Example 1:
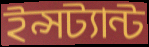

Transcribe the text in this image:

ইন্সট্যান্ট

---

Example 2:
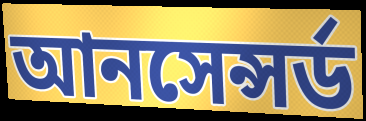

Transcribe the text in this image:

আনসেন্সর্ড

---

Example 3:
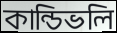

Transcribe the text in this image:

কান্ডিভলি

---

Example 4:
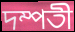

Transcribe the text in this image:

দম্পতী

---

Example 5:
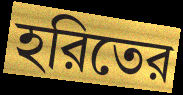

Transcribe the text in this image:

হরিতের